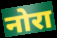
नोरा